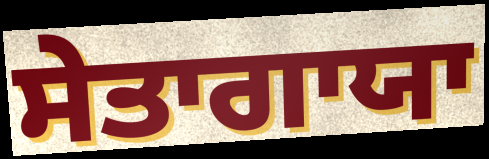
ਸੇਤਾਗਾਯਾ